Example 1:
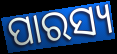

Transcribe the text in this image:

ପାରସ୍ଯ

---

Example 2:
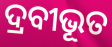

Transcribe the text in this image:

ଦ୍ରବୀଭୂତ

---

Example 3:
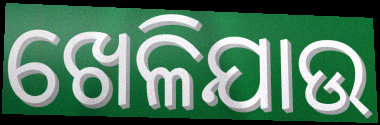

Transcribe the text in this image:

ଖେଳିଯାଉ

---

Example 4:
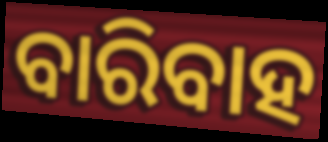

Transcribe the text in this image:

ବାରିବାହ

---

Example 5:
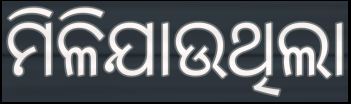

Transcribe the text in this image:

ମିଳିଯାଉଥିଲା